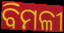
ବିମଳୀ